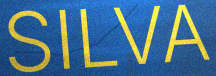
SILVA